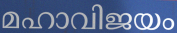
മഹാവിജയം